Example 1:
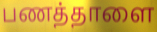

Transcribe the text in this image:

பணத்தாளை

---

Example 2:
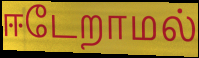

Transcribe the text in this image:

ஈடேறாமல்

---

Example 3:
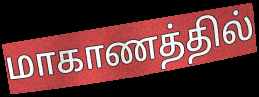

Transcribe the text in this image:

மாகாணத்தில்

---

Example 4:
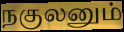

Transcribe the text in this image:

நகுலனும்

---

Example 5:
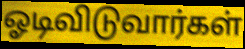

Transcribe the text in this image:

ஓடிவிடுவார்கள்